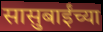
सासुबाईंच्या